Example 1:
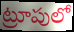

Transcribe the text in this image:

ట్రూపులో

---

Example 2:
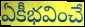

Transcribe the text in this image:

ఏకీభవించే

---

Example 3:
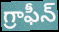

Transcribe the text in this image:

గ్రాఫీన్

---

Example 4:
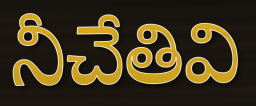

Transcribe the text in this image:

నీచేతివి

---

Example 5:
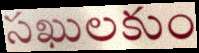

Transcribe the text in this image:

సఖులకుం